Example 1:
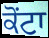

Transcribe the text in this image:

ਕੋਂਟਾ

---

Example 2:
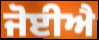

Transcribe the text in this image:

ਜੋਈਐ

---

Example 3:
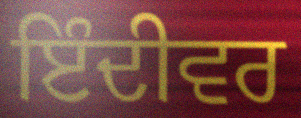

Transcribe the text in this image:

ਇੰਦੀਵਰ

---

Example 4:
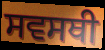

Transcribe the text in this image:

ਸਵਸਥੀ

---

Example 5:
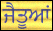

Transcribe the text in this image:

ਜੈਤੂਆਂ